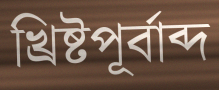
খ্রিষ্টপূর্বাব্দ